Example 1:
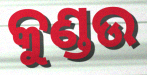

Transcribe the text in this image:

କୁଣ୍ଡଉ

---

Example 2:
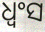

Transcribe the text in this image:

ଧ୍ୱଂସ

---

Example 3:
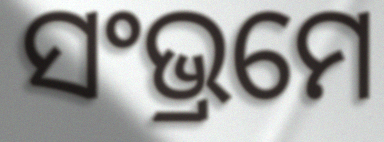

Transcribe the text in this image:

ସଂଭ୍ରମେ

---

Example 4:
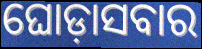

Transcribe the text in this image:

ଘୋଡ଼ାସବାର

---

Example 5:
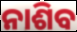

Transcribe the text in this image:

ନାଶିବ